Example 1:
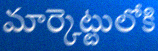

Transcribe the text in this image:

మార్కెట్టులోకి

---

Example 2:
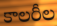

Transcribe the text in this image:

కాలరీల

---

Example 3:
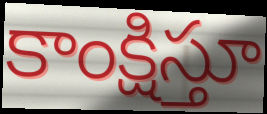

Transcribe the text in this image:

కాంక్షిస్తూ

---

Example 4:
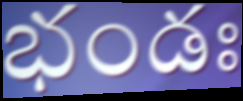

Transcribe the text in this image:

భండః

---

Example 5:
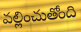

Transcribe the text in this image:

వల్లించుతోంది